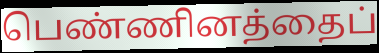
பெண்ணினத்தைப்